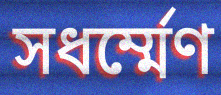
সধর্ম্মেণ